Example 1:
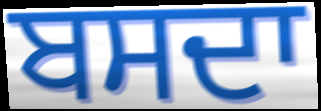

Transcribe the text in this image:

ਬਸਦਾ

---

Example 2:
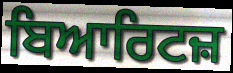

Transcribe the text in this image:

ਬਿਆਰਿਟਜ਼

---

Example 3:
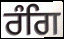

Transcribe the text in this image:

ਰੰਗਿ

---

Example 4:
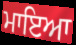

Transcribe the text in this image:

ਮਾਇਆ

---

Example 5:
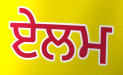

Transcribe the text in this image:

ਏਲਮ